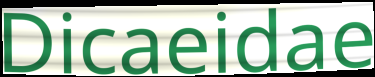
Dicaeidae